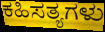
ಕಹಿಸತ್ಯಗಳು